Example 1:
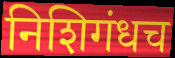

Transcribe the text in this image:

निशिगंधच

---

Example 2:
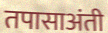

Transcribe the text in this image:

तपासाअंती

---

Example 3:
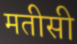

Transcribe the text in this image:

मतीसी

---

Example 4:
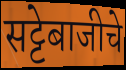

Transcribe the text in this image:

सट्टेबाजीचे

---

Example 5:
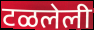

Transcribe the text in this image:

टळलेली